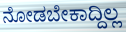
ನೋಡಬೇಕಾದ್ದಿಲ್ಲ